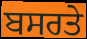
ਬਸਰਤੇ